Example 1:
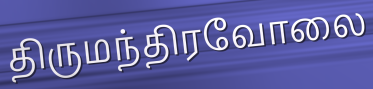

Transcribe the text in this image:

திருமந்திரவோலை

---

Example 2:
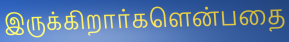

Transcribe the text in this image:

இருக்கிறார்களென்பதை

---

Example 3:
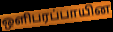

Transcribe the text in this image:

ஒளிபரப்பாயின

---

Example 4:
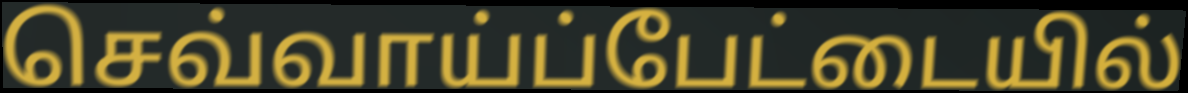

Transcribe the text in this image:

செவ்வாய்ப்பேட்டையில்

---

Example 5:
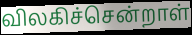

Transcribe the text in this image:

விலகிச்சென்றாள்